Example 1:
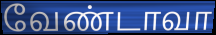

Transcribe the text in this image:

வேண்டாவா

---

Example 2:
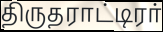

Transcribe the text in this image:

திருதராட்டிரர்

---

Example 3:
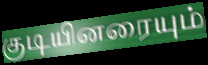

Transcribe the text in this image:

குடியினரையும்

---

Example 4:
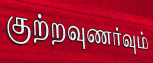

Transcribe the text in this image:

குற்றவுணர்வும்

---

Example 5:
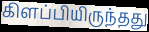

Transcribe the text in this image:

கிளப்பியிருந்தது